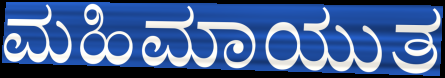
ಮಹಿಮಾಯುತ